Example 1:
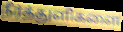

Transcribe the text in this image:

நீர்த்துளிகளை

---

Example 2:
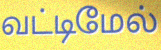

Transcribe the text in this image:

வட்டிமேல்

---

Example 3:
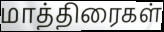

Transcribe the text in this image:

மாத்திரைகள்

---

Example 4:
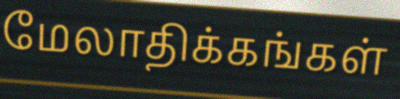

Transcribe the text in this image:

மேலாதிக்கங்கள்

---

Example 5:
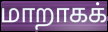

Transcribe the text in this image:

மாறாகக்